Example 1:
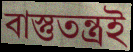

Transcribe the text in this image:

বাস্তুতন্ত্রই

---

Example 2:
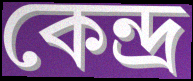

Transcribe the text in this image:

কেন্দ্র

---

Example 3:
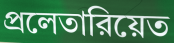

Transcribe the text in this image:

প্রলেতারিয়েত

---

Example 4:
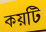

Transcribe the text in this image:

কয়টি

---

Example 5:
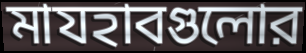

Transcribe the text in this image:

মাযহাবগুলোর